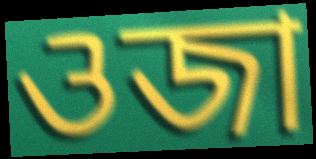
ওজা